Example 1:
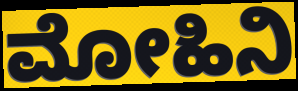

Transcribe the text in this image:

ಮೋಹಿನಿ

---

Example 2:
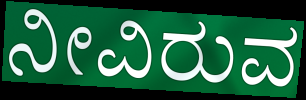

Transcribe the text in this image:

ನೀವಿರುವ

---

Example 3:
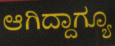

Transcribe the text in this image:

ಆಗಿದ್ದಾಗ್ಯೂ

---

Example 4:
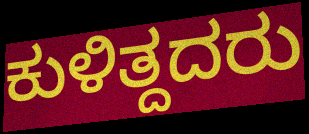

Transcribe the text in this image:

ಕುಳಿತ್ದದರು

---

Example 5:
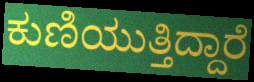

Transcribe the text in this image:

ಕುಣಿಯುತ್ತಿದ್ದಾರೆ